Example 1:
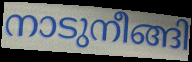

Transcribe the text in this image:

നാടുനീങ്ങി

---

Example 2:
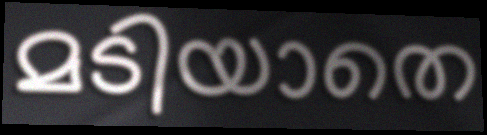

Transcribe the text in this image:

മടിയാതെ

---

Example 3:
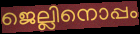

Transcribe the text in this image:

ജെല്ലിനൊപ്പം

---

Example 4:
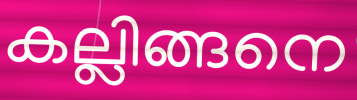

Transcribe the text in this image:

കല്ലിങ്ങനെ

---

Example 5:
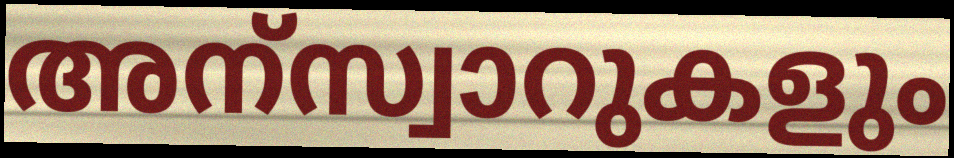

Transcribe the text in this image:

അന്സ്വാറുകളും